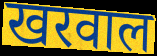
खरवाल